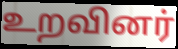
உறவினர்